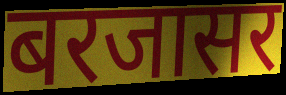
बरजासर